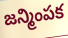
జన్మింపక